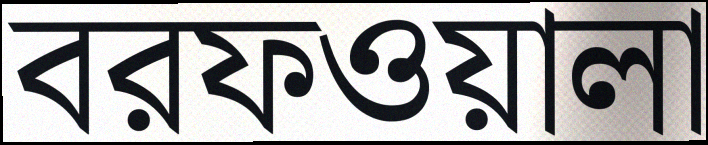
বরফওয়ালা